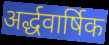
अर्द्धवार्षिक